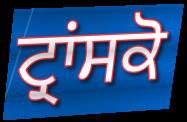
ਟ੍ਰਾਂਸਕੋ